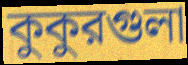
কুকুরগুলা